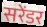
सरेंडर